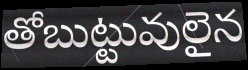
తోబుట్టువులైన